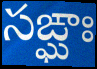
సఙ్ఘాః